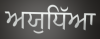
ਅਯੁਧਿੱਆ